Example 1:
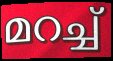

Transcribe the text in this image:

മറച്ച്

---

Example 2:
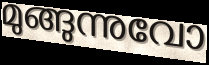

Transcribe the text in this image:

മുങ്ങുന്നുവോ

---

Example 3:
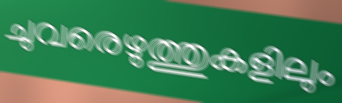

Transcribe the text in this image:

ചുവരെഴുത്തുകളിലും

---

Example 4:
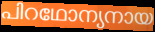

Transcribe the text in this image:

പിറഥോന്യനായ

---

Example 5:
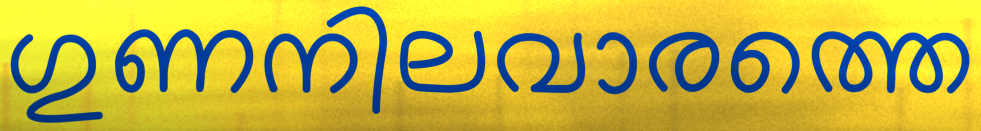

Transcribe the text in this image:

ഗുണനിലവാരത്തെ